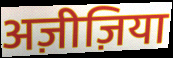
अज़ीज़िया